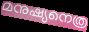
മനുഷ്യനെത്ര